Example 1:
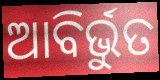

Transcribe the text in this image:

ଆବିର୍ଭୁତ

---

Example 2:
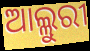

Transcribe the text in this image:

ଆଲ୍ଲୁରୀ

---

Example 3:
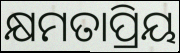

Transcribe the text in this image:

କ୍ଷମତାପ୍ରିୟ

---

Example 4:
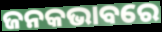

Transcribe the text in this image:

ଜନକଭାବରେ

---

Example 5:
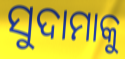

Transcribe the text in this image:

ସୁଦାମାକୁ